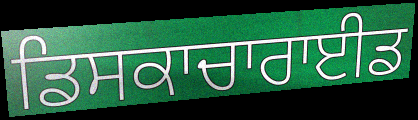
ਡਿਸਕਾਚਾਰਾਈਡ